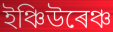
ইঞ্চিউৰেঞ্চ